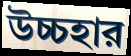
উচ্চহার